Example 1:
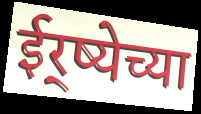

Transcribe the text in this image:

ईर्ष्येच्या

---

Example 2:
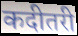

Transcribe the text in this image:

कदीतरी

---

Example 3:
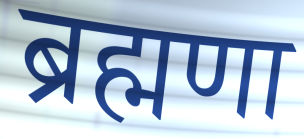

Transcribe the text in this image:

ब्रह्मणा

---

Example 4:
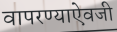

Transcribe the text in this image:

वापरण्याऐवजी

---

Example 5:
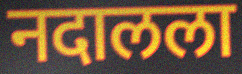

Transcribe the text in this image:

नदालला